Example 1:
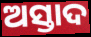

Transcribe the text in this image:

ଅସ୍ତାଦ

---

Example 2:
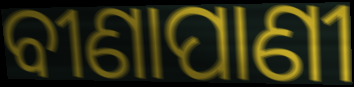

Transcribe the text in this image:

ବୀଣାପାଣୀ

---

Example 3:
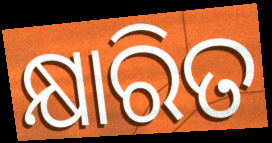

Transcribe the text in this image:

କ୍ଷାରିତ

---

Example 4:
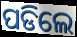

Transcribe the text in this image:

ପଡିଲେ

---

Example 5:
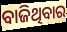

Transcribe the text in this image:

ବାଜିଥିବାର